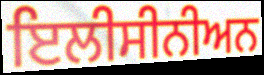
ਇਲੀਸੀਨੀਅਨ